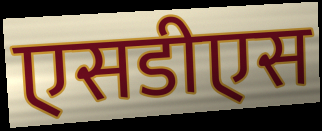
एसडीएस